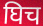
घिच